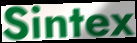
Sintex